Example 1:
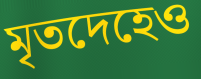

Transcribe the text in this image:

মৃতদেহেও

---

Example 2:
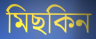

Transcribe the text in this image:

মিছকিন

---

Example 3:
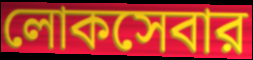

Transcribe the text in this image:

লোকসেবার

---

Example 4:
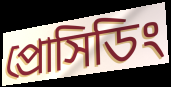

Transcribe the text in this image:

প্রোসিডিং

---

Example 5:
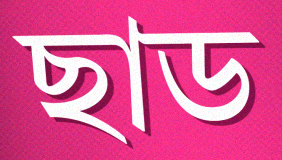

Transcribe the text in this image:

ছাড